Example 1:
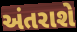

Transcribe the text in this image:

અંતરાશે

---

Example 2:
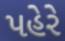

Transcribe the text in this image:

પહેરે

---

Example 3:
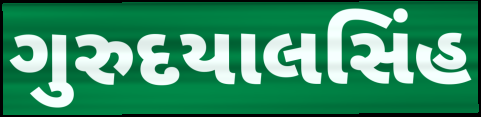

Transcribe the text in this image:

ગુરુદયાલસિંહ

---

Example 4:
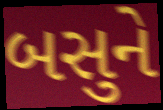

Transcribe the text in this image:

બસુને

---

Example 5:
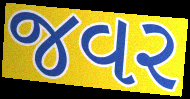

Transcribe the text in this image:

જવર